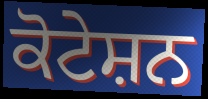
ਕੋਟੇਸ਼ਨ